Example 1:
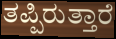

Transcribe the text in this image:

ತಪ್ಪಿರುತ್ತಾರೆ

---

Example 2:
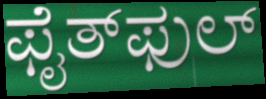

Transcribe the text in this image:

ಫೈತ್‌ಫುಲ್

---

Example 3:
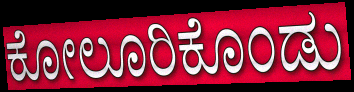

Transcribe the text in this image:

ಕೋಲೂರಿಕೊಂಡು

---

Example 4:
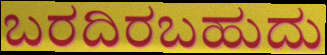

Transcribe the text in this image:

ಬರದಿರಬಹುದು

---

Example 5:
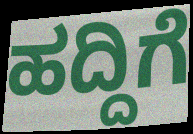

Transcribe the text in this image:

ಹದ್ದಿಗೆ